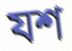
যশ